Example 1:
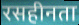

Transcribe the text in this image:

रसहीनता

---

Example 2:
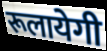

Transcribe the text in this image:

रूलायेगी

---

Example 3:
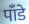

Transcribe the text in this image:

पाँडे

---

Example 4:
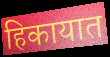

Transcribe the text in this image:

हिकायात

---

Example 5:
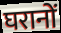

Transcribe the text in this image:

घरानों